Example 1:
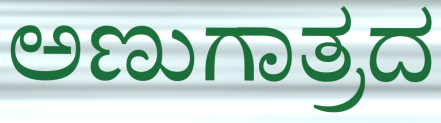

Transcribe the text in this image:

ಅಣುಗಾತ್ರದ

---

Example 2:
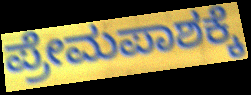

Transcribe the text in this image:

ಪ್ರೇಮಪಾಶಕ್ಕೆ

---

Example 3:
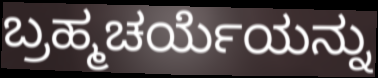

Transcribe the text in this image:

ಬ್ರಹ್ಮಚರ್ಯೆಯನ್ನು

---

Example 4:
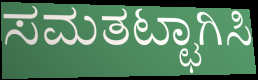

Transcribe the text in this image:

ಸಮತಟ್ಟಾಗಿಸಿ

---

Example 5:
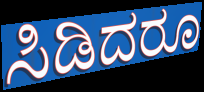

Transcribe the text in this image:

ಸಿಡಿದರೂ